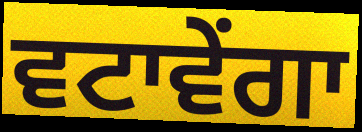
ਵਟਾਵੇਂਗਾ